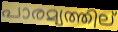
പാരമ്യത്തില്